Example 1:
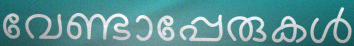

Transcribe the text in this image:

വേണ്ടാപ്പേരുകൾ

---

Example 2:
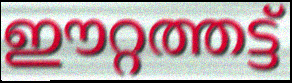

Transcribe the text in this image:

ഈറ്റത്തട്ട്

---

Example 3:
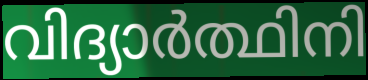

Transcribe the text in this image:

വിദ്യാർത്ഥിനി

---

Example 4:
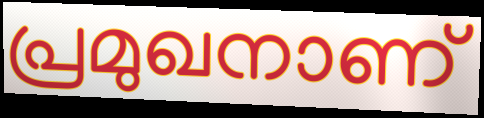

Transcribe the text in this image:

പ്രമുഖനാണ്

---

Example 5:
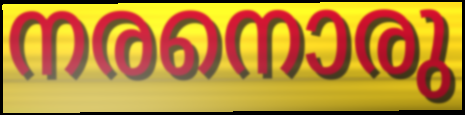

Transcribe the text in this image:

നരനൊരു